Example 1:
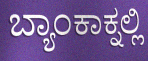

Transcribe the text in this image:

ಬ್ಯಾಂಕಾಕ್ನಲ್ಲಿ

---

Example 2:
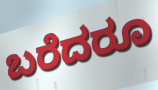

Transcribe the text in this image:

ಬರೆದರೂ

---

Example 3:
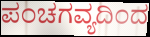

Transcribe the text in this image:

ಪಂಚಗವ್ಯದಿಂದ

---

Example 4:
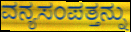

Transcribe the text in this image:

ವನ್ಯಸಂಪತ್ತನ್ನು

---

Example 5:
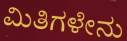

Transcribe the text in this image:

ಮಿತಿಗಳೇನು